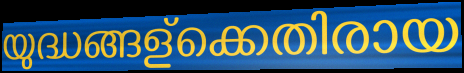
യുദ്ധങ്ങള്ക്കെതിരായ